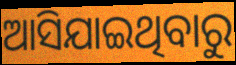
ଆସିଯାଇଥିବାରୁ